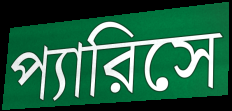
প্যারিসে